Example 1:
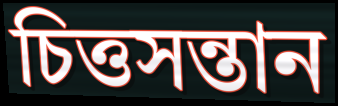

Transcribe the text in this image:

চিত্তসন্তান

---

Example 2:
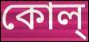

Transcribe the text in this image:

কোল্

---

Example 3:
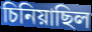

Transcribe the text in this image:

চিনিয়াছিল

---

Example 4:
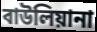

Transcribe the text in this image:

বাউলিয়ানা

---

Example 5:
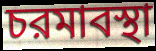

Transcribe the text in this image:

চরমাবস্থা